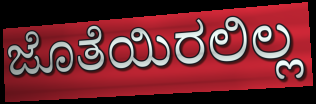
ಜೊತೆಯಿರಲಿಲ್ಲ